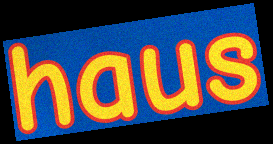
haus